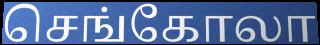
செங்கோலா